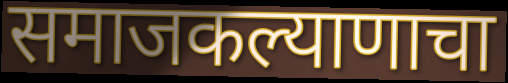
समाजकल्याणाचा